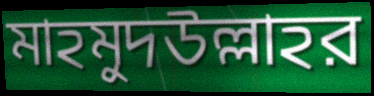
মাহমুদউল্লাহর